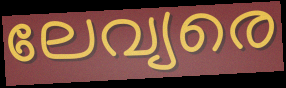
ലേവ്യരെ